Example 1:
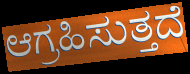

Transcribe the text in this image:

ಆಗ್ರಹಿಸುತ್ತದೆ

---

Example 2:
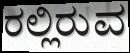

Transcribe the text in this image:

ರಲ್ಲಿರುವ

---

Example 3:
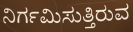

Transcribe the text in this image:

ನಿರ್ಗಮಿಸುತ್ತಿರುವ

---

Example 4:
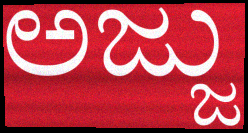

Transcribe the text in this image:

ಅಜ್ಜು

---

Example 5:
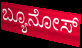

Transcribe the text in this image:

ಬ್ಯೂನೋಸ್